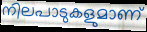
നിലപാടുകളുമാണ്